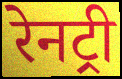
रेनट्री